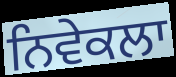
ਨਿਵੇਕਲਾ